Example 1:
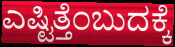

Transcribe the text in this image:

ಎಷ್ಟಿತ್ತೆಂಬುದಕ್ಕೆ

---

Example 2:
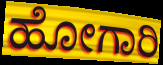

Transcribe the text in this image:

ಹೋಗಾರಿ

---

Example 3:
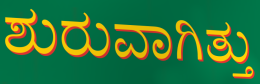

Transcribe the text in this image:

ಶುರುವಾಗಿತ್ತು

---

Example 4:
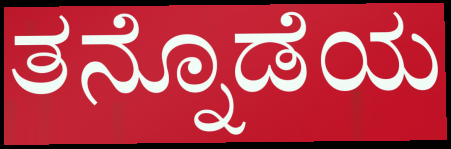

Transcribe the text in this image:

ತನ್ನೊಡೆಯ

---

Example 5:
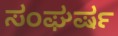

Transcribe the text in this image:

ಸಂಘರ್ಷ